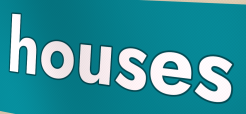
houses